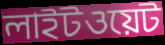
লাইটওয়েট